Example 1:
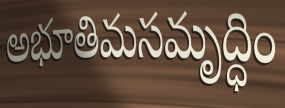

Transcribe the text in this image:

అభూతిమసమృద్ధిం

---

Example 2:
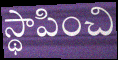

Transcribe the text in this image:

స్థాపించి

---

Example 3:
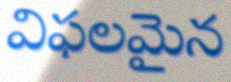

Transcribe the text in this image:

విఫలమైన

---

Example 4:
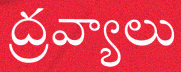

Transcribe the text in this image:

ద్రవ్యాలు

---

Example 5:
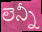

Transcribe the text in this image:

లెన్నీ